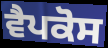
ਵੈਪਕੋਸ